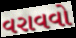
વરાવવો